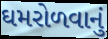
ઘમરોળવાનું